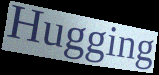
Hugging